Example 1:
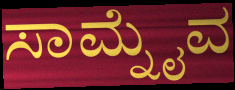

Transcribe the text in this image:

ಸಾಮ್ನೈವ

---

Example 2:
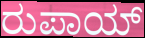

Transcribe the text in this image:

ರುಪಾಯ್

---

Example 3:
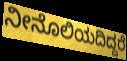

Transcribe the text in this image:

ನೀನೊಲಿಯದಿದ್ದರೆ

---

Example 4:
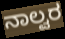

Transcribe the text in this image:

ನಾಲ್ವರ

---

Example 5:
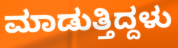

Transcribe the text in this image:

ಮಾಡುತ್ತಿದ್ದಳು